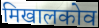
मिखालकोव